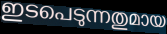
ഇടപെടുന്നതുമായ